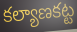
కల్యాణకట్ట